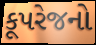
કૂપરેજનો